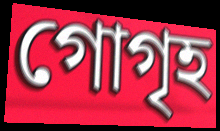
গোগৃহ